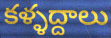
కళ్ళద్దాలు